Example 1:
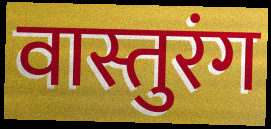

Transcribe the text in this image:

वास्तुरंग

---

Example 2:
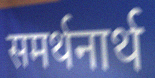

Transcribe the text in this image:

समर्थनार्थ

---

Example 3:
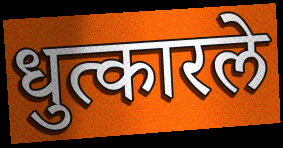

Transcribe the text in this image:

धुत्कारले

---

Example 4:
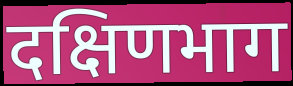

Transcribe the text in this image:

दक्षिणभाग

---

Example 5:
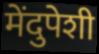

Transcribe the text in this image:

मेंदुपेशी